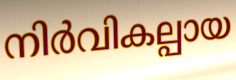
നിർവികല്പായ